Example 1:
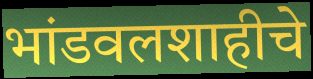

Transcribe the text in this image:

भांडवलशाहीचे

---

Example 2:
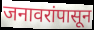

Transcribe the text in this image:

जनावरांपासून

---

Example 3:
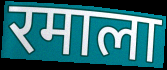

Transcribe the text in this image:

रमाला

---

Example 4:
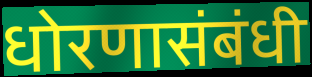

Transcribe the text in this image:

धोरणासंबंधी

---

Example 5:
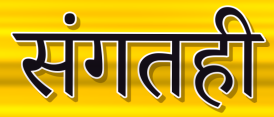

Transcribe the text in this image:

संगतही